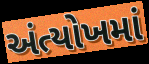
અંત્યોખમાં